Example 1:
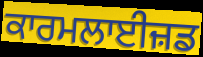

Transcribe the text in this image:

ਕਾਰਮਲਾਈਜ਼ਡ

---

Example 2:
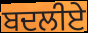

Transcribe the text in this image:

ਬਦਲੀਏ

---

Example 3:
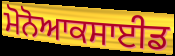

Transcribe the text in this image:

ਮੋਨੋਆਕਸਾਈਡ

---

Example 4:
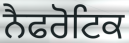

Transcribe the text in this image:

ਨੈਫਰੋਟਿਕ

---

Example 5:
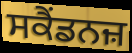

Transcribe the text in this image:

ਸਕੈਂਡਨਜ਼